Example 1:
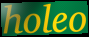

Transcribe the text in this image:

holeo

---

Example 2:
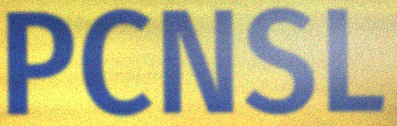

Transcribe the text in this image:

PCNSL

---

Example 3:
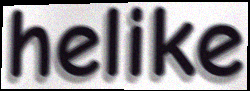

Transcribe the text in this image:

helike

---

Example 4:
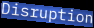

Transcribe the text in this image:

Disruption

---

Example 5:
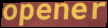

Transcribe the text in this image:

opener